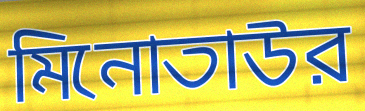
মিনোতাউর